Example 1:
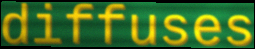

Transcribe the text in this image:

diffuses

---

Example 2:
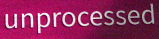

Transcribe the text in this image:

unprocessed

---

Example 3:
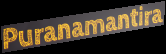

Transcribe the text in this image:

Puranamantira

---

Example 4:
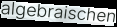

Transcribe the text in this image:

algebraischen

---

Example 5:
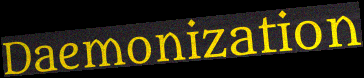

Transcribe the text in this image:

Daemonization